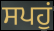
ਸਪਹੁਂ